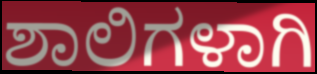
ಶಾಲಿಗಳಾಗಿ